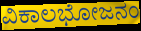
ವಿಕಾಲಭೋಜನಂ